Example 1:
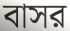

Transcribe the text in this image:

বাসর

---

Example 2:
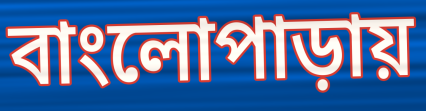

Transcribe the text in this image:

বাংলোপাড়ায়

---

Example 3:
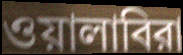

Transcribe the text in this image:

ওয়ালাবিরা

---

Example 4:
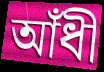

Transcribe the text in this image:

আঁধী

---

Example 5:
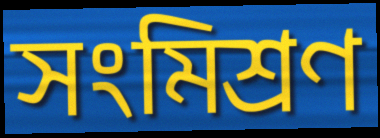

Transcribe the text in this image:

সংমিশ্রণ